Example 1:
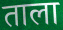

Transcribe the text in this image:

ताला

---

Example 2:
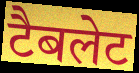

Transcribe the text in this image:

टैबलेट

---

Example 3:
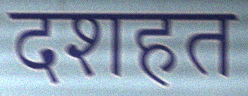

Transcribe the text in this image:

दशहत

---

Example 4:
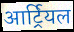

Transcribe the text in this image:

आर्ट्रियल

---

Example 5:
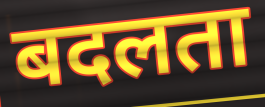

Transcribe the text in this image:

बदलता